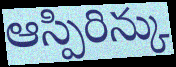
ఆస్పిరిన్కు